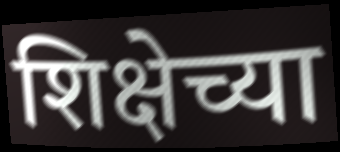
शिक्षेच्या